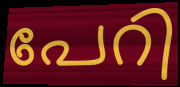
പേറി